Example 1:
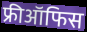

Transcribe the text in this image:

फ्रीऑफिस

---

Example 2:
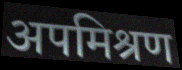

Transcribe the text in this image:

अपमिश्रण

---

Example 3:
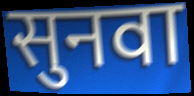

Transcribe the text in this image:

सुनवा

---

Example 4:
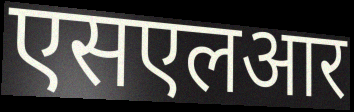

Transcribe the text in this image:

एसएलआर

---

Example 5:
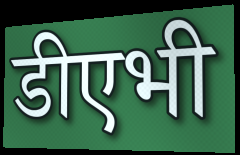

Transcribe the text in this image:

डीएभी